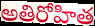
అతిరోహిత